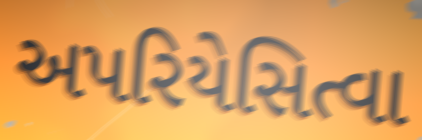
અપરિયેસિત્વા